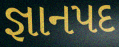
જ્ઞાનપદ